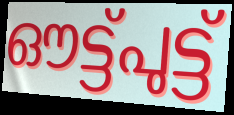
ഔട്ട്പുട്ട്